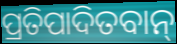
ପ୍ରତିପାଦିତବାନ୍